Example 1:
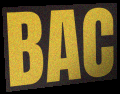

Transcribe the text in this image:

BAC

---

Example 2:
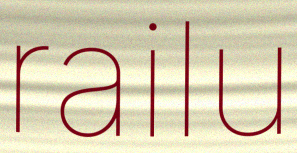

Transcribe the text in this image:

railu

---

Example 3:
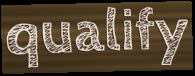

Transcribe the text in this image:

qualify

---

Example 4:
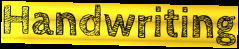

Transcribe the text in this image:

Handwriting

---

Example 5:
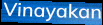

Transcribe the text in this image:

Vinayakan